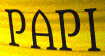
PAPI